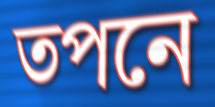
তপনে